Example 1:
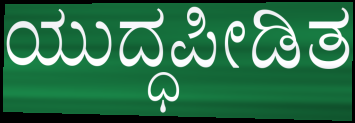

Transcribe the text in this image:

ಯುದ್ಧಪೀಡಿತ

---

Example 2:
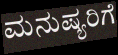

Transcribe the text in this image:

ಮನುಷ್ಯರಿಗೆ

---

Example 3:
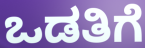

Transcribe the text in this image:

ಒಡತಿಗೆ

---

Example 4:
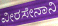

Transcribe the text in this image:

ವೀರಸೇನಾನಿ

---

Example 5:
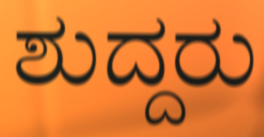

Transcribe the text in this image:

ಶುದ್ದರು